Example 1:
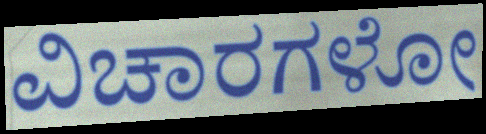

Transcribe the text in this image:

ವಿಚಾರಗಳೋ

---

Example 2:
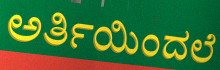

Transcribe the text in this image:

ಅರ್ತಿಯಿಂದಲೆ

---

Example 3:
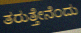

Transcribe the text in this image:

ತರುತ್ತೇನೆಂದು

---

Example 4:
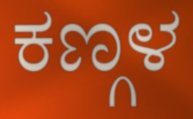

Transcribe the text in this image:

ಕಣ್ಗಳ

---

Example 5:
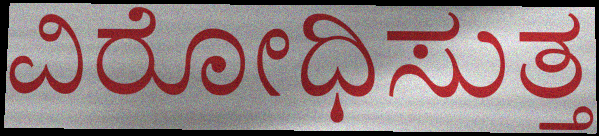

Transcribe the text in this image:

ವಿರೋಧಿಸುತ್ತ